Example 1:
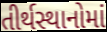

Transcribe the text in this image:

તીર્થસ્થાનોમાં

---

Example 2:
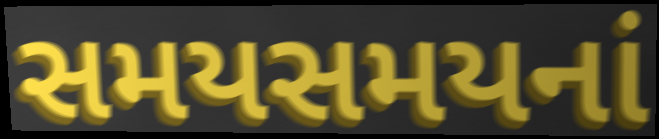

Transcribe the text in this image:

સમયસમયનાં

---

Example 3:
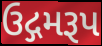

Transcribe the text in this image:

ઉદ્ગમરૂપ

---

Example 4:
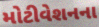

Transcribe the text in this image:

મોટીવેશનના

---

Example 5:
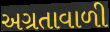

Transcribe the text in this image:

અગ્રતાવાળી